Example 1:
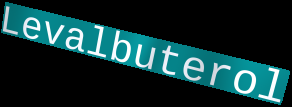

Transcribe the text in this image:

Levalbuterol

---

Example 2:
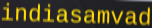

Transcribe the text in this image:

indiasamvad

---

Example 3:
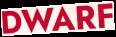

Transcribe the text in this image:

DWARF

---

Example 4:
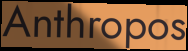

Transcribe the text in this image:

Anthropos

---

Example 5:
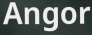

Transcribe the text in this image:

Angor